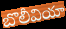
బొలీవియా